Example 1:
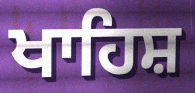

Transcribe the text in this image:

ਖਾਹਿਸ਼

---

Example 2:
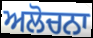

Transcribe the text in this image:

ਅਲੋਚਨਾ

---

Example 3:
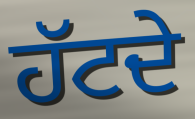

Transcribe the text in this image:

ਹੱਟਦੇ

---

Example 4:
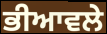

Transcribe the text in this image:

ਭੀਆਵਲੇ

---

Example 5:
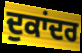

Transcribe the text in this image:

ਦੁਕਾਂਦਰ